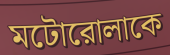
মটোরোলাকে